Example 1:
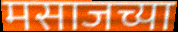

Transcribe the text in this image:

मसाजच्या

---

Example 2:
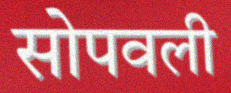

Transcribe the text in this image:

सोपवली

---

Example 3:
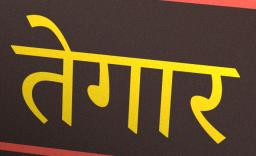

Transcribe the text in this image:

तेगार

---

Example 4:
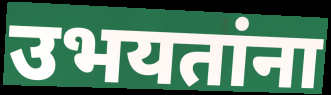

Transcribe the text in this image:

उभयतांना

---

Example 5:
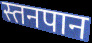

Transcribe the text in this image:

स्तनपान